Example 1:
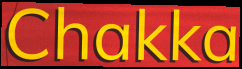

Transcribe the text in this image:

Chakka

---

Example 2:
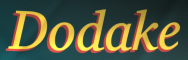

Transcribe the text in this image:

Dodake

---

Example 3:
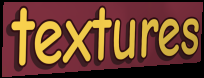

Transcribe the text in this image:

textures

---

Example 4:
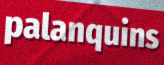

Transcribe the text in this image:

palanquins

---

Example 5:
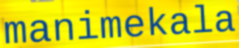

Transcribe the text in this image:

manimekala